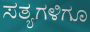
ಸತ್ಯಗಳಿಗೂ